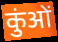
कुंओं